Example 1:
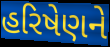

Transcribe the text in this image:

હરિષેણને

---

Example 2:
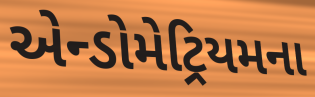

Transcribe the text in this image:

એન્ડોમેટ્રિયમના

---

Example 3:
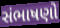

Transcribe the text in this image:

સંભાષણો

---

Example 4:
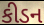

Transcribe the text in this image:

કીડન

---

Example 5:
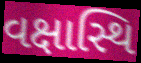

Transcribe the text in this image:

વક્ષાસ્થિ